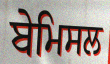
ਬੇਮਿਸਲ